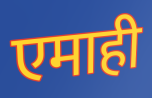
एमाही